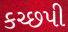
કચ્છપી